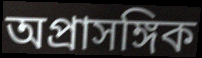
অপ্রাসঙ্গিক